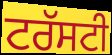
ਟਰੱਸਟੀ